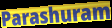
Parashuram